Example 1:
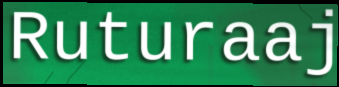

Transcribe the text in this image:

Ruturaaj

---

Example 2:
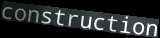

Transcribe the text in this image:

construction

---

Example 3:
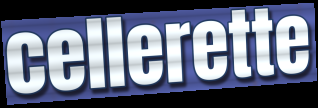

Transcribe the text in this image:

cellerette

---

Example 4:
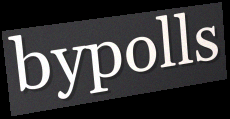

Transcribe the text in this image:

bypolls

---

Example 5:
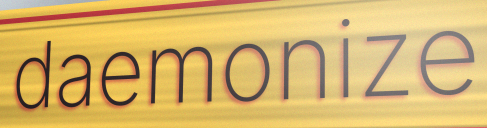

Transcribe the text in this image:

daemonize